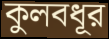
কুলবধূর